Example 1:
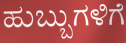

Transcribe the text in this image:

ಹುಬ್ಬುಗಳಿಗೆ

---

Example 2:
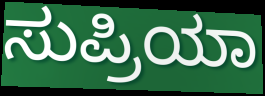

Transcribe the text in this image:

ಸುಪ್ರಿಯಾ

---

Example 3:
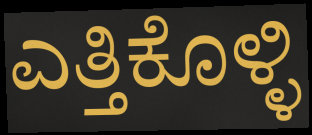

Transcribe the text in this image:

ಎತ್ತಿಕೊಳ್ಳಿ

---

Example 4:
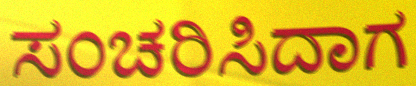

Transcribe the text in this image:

ಸಂಚರಿಸಿದಾಗ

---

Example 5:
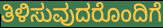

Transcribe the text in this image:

ತಿಳಿಸುವುದರೊಂದಿಗೆ